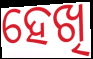
ହେଖି